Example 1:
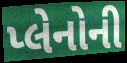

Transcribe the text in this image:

પ્લેનોની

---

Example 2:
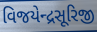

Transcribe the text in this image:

વિજયેન્દ્રસૂરિજી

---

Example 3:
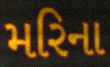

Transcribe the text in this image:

મરિના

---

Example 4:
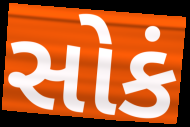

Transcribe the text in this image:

સોકં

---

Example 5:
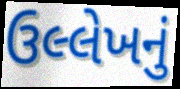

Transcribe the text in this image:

ઉલ્લેખનું